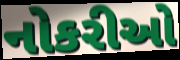
નોકરીઓ